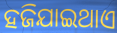
ହଜିଯାଇଥାଏ